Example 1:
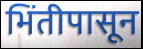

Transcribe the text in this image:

भिंतीपासून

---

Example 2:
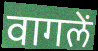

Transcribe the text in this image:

वागलें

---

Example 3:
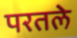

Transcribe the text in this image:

परतले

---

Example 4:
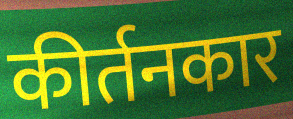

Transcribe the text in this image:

कीर्तनकार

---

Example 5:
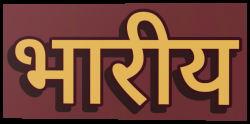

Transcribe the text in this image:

भारीय